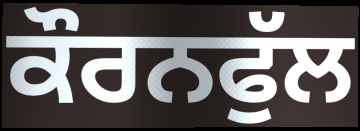
ਕੌਰਨਫੁੱਲ